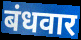
बंधवार